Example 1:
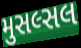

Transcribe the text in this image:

મુસલ્સલ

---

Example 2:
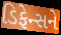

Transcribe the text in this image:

ડિફેન્સને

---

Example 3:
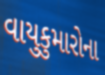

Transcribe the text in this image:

વાયુકુમારોના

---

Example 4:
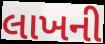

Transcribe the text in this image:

લાખની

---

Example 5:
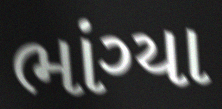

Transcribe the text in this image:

ભાંગ્યા